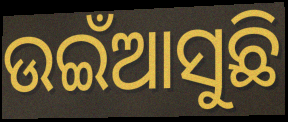
ଉଇଁଆସୁଛି